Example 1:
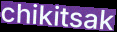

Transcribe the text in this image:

chikitsak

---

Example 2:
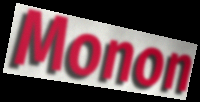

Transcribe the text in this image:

Monon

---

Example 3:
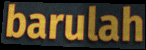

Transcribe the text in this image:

barulah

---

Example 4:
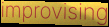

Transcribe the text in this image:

improvising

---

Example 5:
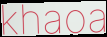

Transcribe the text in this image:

khaoa